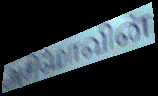
அசிமோவின்